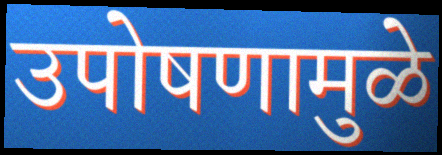
उपोषणामुळे